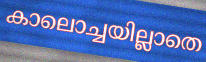
കാലൊച്ചയില്ലാതെ